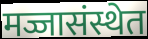
मज्जासंस्थेत